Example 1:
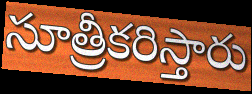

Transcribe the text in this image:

సూత్రీకరిస్తారు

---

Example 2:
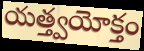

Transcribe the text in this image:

యత్త్వయోక్తం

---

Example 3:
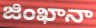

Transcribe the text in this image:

జింఖానా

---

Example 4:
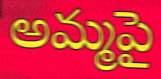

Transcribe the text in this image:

అమ్మపై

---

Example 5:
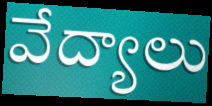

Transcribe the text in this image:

వేద్యాలు